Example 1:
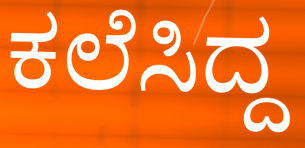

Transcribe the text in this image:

ಕಲೆಸಿದ್ದ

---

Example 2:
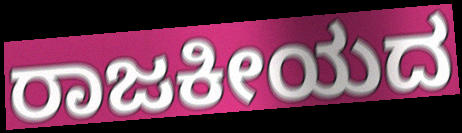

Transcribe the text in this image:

ರಾಜಕೀಯದ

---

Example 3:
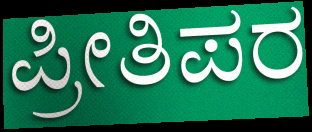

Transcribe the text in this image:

ಪ್ರೀತಿಪರ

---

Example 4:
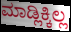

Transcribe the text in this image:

ಮಾಡ್ಲಿಕ್ಕಿಲ್ಲ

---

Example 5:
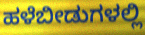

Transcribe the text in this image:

ಹಳೆಬೀಡುಗಳಲ್ಲಿ